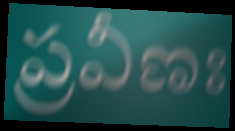
ప్రవీణః